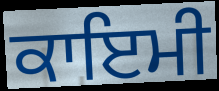
ਕਾਇਮੀ